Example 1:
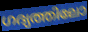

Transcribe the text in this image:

ഗദ്യത്തിലോ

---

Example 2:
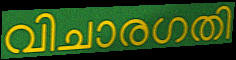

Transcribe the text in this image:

വിചാരഗതി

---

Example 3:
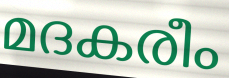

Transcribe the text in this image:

മദകരീം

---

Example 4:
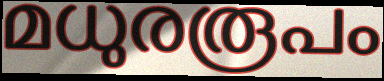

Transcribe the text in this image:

മധുരരൂപം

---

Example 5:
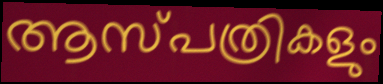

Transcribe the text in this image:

ആസ്പത്രികളും